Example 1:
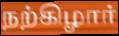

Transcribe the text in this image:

நற்கிழார்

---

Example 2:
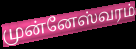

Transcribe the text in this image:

முன்னேஸ்வரம்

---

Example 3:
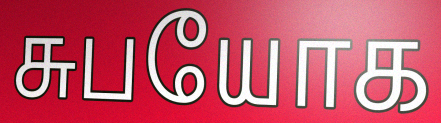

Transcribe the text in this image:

சுபயோக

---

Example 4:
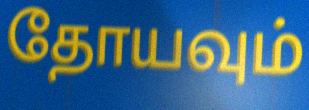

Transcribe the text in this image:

தோயவும்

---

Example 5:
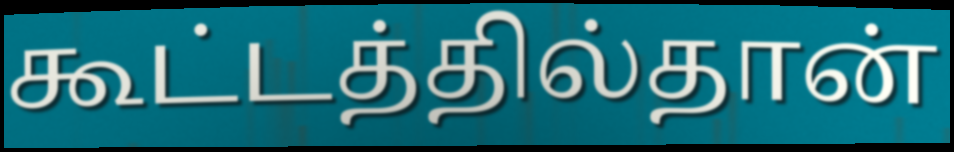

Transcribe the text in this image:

கூட்டத்தில்தான்